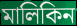
মালিকিন